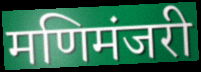
मणिमंजरी